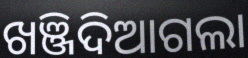
ଖଞ୍ଜିଦିଆଗଲା